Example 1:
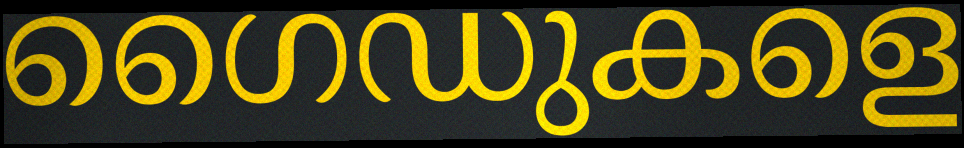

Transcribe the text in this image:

ഗൈഡുകളെ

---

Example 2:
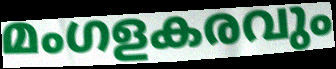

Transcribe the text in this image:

മംഗളകരവും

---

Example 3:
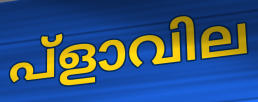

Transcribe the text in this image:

പ്ളാവില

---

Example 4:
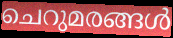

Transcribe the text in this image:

ചെറുമരങ്ങൾ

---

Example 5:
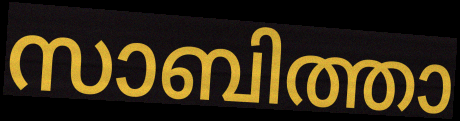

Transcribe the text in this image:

സാബിത്താ